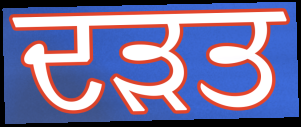
ਦੜਤ